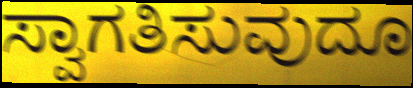
ಸ್ವಾಗತಿಸುವುದೂ